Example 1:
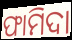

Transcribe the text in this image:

ଫାମିଦା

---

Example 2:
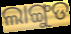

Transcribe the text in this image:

ଲାଙ୍ଗୁଡ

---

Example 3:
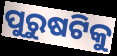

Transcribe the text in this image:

ପୁରୁଷଟିକୁ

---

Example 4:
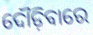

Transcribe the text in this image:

ଦୌଡ଼ିବାରେ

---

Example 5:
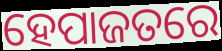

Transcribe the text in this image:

ହେପାଜତରେ